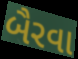
બૈરવા